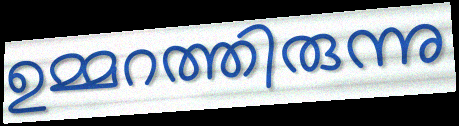
ഉമ്മറത്തിരുന്നു